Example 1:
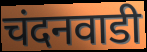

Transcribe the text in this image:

चंदनवाडी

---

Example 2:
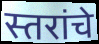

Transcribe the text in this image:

स्तरांचे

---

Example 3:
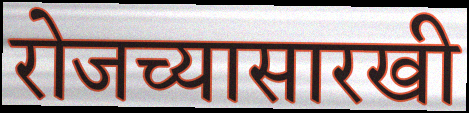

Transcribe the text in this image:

रोजच्यासारखी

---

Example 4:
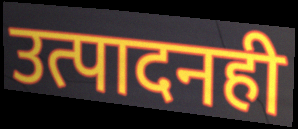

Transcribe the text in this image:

उत्पादनही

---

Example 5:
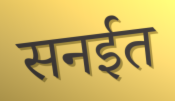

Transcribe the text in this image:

सनईत